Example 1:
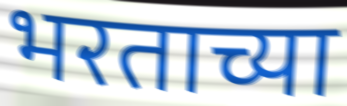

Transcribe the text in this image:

भरताच्या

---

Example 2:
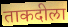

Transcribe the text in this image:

ताकदीला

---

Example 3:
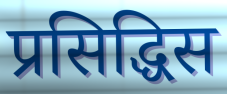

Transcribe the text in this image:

प्रसिद्धिस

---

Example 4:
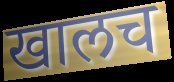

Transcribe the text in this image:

खालच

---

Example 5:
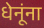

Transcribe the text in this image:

धेनूंना